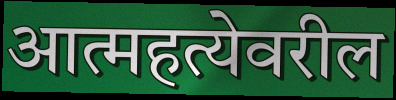
आत्महत्येवरील